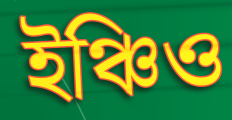
ইঞ্চিও